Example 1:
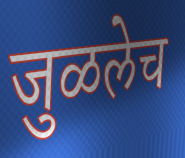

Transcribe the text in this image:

जुळलेच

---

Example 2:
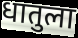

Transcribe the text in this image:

धातुला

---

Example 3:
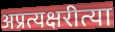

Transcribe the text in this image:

अप्रत्यक्षरीत्या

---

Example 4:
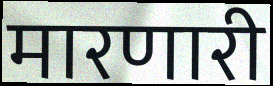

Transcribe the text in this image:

मारणारी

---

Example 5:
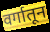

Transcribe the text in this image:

वर्गातून